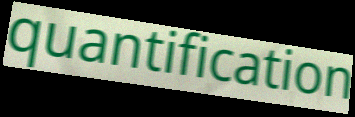
quantification